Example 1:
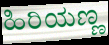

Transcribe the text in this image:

ಹಿರಿಯಣ್ಣ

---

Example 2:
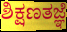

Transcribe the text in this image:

ಶಿಕ್ಷಣತಜ್ಞೆ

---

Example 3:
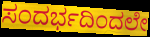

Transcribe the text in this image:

ಸಂದರ್ಭದಿಂದಲೇ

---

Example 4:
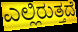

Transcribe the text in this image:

ಎಲ್ಲಿರುತ್ತದೆ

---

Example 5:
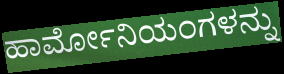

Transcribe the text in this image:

ಹಾರ್ಮೋನಿಯಂಗಳನ್ನು